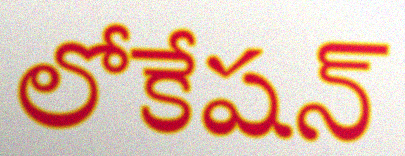
లోకేషన్